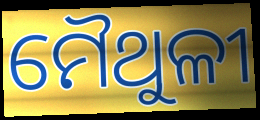
ମୈଥୁଳୀ